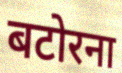
बटोरना